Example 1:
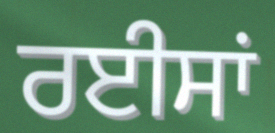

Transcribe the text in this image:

ਰਈਸਾਂ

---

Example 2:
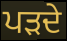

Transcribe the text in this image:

ਪੜਦੇ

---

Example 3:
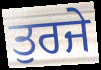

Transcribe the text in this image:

ਤੁਰਜੇ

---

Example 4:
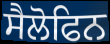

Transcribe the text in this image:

ਸੈਲੋਫਿਨ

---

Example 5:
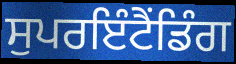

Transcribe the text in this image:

ਸੁਪਰਇੰਟੈਂਡਿੰਗ